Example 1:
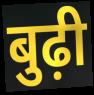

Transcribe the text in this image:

बुढ़ी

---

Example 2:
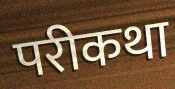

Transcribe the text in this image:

परीकथा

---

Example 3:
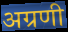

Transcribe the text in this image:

अग्रणी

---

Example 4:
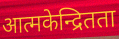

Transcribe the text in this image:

आत्मकेन्द्रितता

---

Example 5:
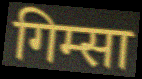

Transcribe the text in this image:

गिम्सा